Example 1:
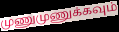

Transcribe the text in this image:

முணுமுணுக்கவும்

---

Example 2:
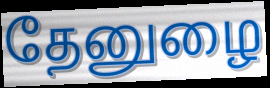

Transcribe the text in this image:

தேனுழை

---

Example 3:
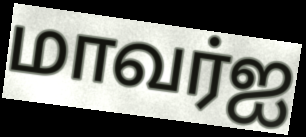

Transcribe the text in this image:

மாவர்ஐ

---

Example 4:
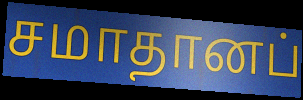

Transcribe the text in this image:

சமாதானப்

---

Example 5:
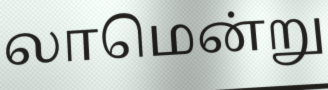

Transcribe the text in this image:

லாமென்று